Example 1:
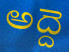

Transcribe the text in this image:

అద్దె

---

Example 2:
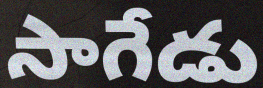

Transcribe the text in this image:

సాగేడు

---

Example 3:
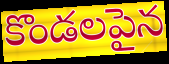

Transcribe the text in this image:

కొండలపైన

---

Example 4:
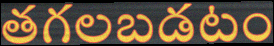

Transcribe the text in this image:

తగలబడటం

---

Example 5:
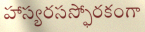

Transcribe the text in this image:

హాస్యరసస్ఫోరకంగా